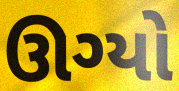
ઊગ્યો